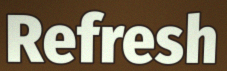
Refresh